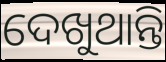
ଦେଖୁଥାନ୍ତି